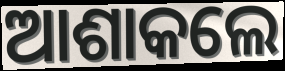
ଆଶାକଲେ